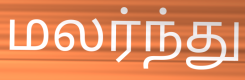
மலர்ந்து